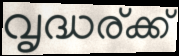
വൃദ്ധര്ക്ക്